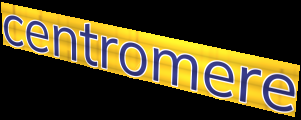
centromere